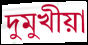
দুমুখীয়া